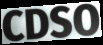
CDSO